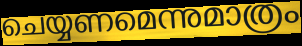
ചെയ്യണമെന്നുമാത്രം